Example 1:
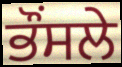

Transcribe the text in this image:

ਭੌਂਸਲੇ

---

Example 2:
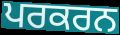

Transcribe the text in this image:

ਪਰਕਰਨ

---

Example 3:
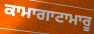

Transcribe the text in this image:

ਕਾਮਾਗਾਟਾਮਾਰੂ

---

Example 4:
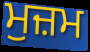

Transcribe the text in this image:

ਮੁਜ਼ਮ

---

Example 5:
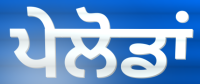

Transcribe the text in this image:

ਪੇਲੋਡਾਂ